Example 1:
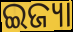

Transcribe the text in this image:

ଇଜ୍ୟା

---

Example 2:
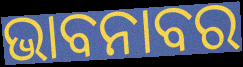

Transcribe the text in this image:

ଭାବନାବର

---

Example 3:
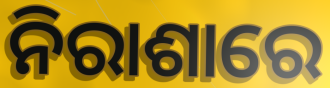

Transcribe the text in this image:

ନିରାଶାରେ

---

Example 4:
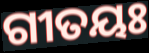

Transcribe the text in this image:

ଗୀତୟଃ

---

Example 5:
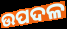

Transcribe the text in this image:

ଉପଦଳ